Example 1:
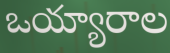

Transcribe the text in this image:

ఒయ్యారాల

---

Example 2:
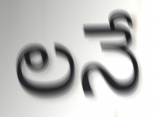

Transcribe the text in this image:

లనే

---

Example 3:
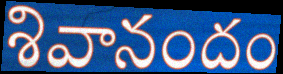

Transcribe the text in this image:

శివానందం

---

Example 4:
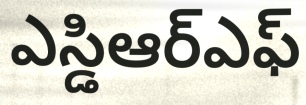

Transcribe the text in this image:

ఎస్డిఆర్ఎఫ్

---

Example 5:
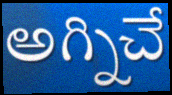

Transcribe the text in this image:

అగ్నిచే